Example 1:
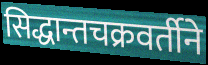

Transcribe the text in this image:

सिद्धान्तचक्रवर्तीने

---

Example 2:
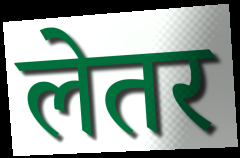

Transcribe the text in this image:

लेतर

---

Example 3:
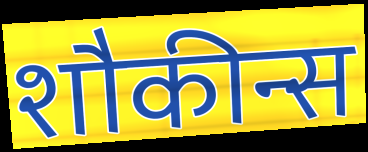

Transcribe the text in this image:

शौकीन्स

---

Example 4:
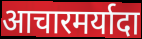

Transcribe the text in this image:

आचारमर्यादा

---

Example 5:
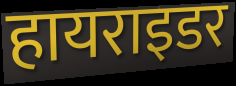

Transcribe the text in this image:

हायराइडर